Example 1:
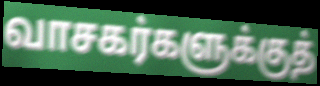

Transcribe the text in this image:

வாசகர்களுக்குத்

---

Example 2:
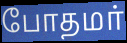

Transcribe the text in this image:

போதமர்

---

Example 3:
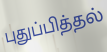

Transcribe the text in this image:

புதுப்பித்தல்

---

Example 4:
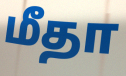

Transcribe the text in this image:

மீதா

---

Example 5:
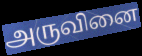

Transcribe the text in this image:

அருவினை